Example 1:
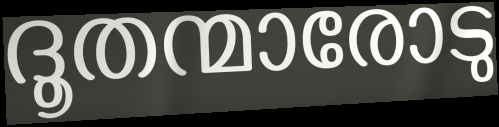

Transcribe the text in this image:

ദൂതന്മാരോടു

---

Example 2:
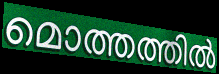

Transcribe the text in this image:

മൊത്തത്തിൽ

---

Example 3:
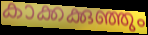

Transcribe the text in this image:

കാക്കക്കുഞ്ഞും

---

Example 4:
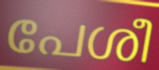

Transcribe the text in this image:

പേശീ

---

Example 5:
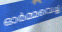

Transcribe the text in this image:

ഓർമ്മവെച്ച